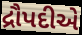
દ્રૌપદીએ